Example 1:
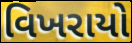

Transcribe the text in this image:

વિખરાયો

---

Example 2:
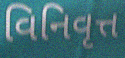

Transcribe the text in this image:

વિનિવૃત્ત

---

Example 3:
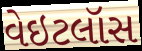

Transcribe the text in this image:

વેઇટલૉસ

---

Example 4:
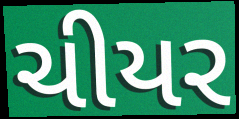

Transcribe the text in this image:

ચીયર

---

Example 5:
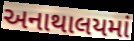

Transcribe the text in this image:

અનાથાલયમાં